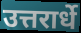
उत्तरार्धे